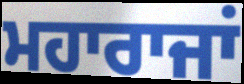
ਮਹਾਰਾਜਾਂ